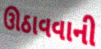
ઊઠાવવાની